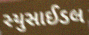
સ્યુસાઈડલ